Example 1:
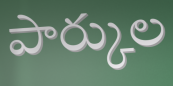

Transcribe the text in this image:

పార్కుల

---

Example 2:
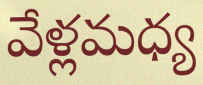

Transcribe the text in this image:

వేళ్లమధ్య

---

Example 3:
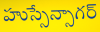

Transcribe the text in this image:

హుస్సేన్సాగర్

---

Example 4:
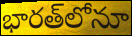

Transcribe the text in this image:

భారత్‌లోనూ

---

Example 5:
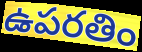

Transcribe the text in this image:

ఉపరతిం